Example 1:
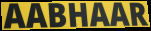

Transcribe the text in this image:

AABHAAR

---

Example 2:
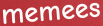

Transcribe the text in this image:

memees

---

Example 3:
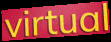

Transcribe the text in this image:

virtual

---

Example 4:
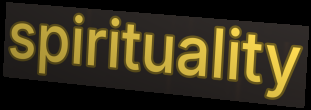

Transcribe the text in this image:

spirituality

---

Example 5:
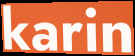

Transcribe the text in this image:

karin